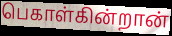
பெகாள்கின்றான்